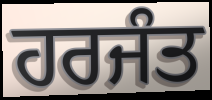
ਹਰਜੰਤ